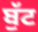
ਬੁੱਟ